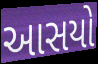
આસયો